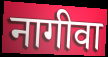
नागीवा